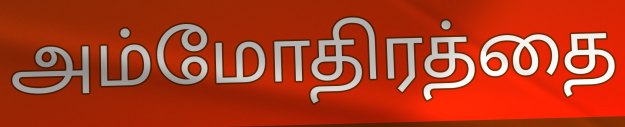
அம்மோதிரத்தை